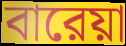
বারেয়া